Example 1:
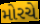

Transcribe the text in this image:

મોરચે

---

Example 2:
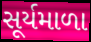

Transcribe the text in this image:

સૂર્યમાળા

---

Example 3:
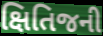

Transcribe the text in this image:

ક્ષિતિજની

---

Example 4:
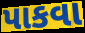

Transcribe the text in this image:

પાકવા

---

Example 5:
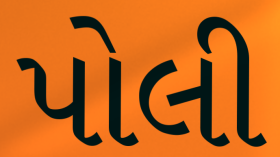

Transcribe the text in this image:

પોલી